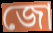
জো